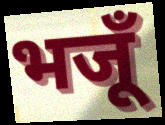
भजूँ